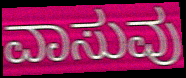
ವಾಸುವು